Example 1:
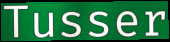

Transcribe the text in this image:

Tusser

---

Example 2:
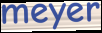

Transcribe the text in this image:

meyer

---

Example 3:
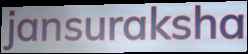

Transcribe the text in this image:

jansuraksha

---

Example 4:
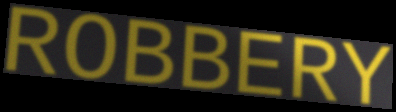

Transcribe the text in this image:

ROBBERY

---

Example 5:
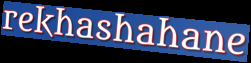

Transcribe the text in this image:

rekhashahane